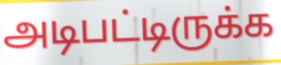
அடிபட்டிருக்க